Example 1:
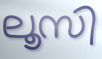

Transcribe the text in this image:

ലൂസി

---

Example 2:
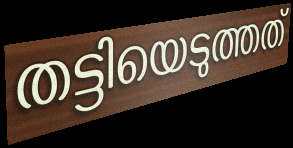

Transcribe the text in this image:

തട്ടിയെടുത്തത്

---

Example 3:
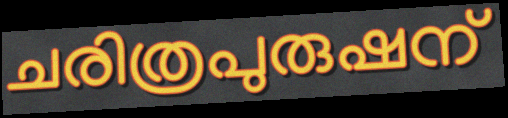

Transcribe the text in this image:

ചരിത്രപുരുഷന്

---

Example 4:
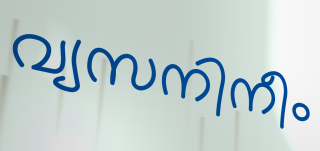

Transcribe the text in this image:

വ്യസനിനീം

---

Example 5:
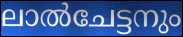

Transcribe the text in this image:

ലാൽചേട്ടനും